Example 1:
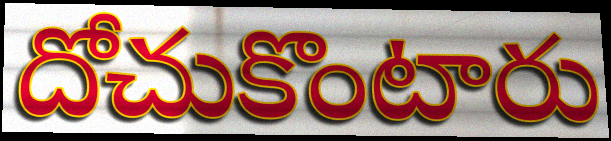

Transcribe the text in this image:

దోచుకొంటారు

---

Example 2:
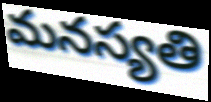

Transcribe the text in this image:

మనస్యతి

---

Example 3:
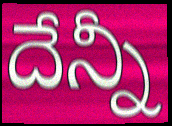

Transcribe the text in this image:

దేన్నీ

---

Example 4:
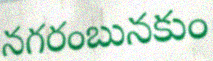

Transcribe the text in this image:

నగరంబునకుం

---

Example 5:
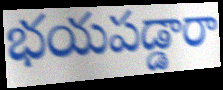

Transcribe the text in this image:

భయపడ్డారా